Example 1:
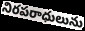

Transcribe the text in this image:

నిరపరాధులును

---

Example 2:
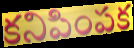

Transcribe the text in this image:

కనిపింపక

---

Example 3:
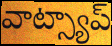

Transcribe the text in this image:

వాట్స్యాప్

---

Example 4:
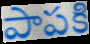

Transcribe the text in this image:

పాపకి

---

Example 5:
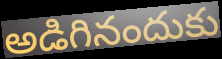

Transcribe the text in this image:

అడిగినందుకు